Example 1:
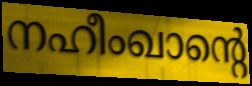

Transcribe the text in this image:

നഹീംഖാന്റെ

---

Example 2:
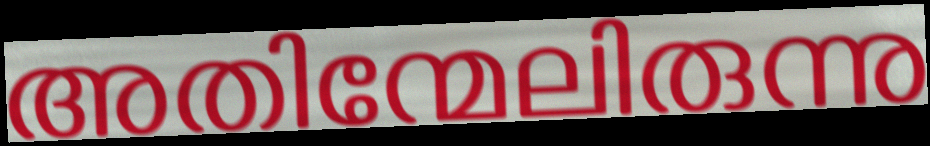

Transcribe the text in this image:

അതിന്മേലിരുന്നു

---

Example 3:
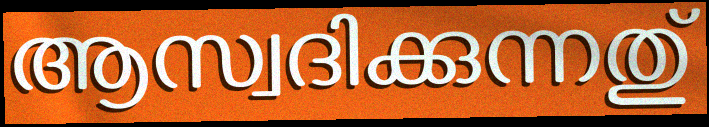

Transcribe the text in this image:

ആസ്വദിക്കുന്നതു്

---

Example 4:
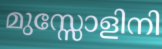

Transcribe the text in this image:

മുസ്സോളിനി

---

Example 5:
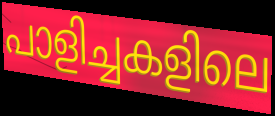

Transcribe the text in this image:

പാളിച്ചകളിലെ